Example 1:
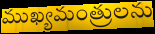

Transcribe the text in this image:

ముఖ్యమంత్రులను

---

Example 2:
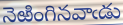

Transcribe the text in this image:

నెఱింగినవాఁడు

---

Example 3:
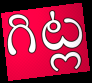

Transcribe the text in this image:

గిట్ల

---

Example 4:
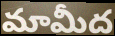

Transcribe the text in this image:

మామీద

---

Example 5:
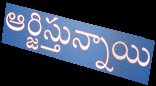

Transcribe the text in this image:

ఆర్జిస్తున్నాయి